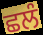
ਛਲੰ